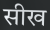
सीख